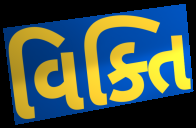
વિક્તિ